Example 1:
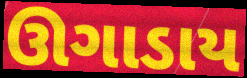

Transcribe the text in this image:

ઊગાડાય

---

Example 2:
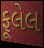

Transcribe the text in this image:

ફૂલેલ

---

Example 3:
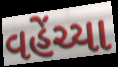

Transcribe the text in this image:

વહેંચ્યા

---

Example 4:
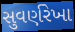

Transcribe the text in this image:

સુવર્ણરેખા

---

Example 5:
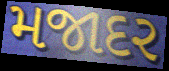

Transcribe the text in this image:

મજાદર